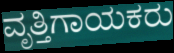
ವೃತ್ತಿಗಾಯಕರು